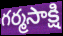
గర్మసాక్షి